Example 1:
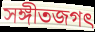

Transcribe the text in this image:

সঙ্গীতজগৎ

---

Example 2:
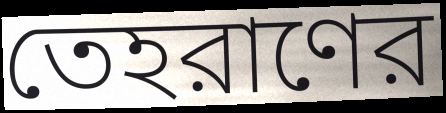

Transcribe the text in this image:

তেহরাণের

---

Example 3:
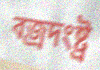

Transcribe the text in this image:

বজ্রদংষ্ট্র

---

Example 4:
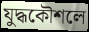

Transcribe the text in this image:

যুদ্ধকৌশলে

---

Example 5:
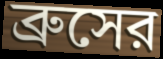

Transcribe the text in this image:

ব্রুসের